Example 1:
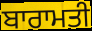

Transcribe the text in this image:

ਬਾਰਾਮਤੀ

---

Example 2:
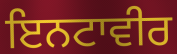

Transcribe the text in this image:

ਇਨਟਾਵੀਰ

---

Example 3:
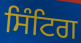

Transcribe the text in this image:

ਸਿੰਟਿਗ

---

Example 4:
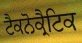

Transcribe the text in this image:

ਟੈਕਨੋਕ੍ਰੈਟਿਕ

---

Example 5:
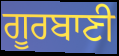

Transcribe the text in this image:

ਗੂਰਬਾਣੀ